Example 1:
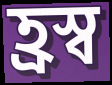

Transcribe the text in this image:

হ্রস্ব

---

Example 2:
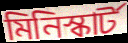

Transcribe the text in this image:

মিনিস্কার্ট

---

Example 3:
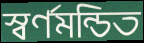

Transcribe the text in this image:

স্বর্ণমন্ডিত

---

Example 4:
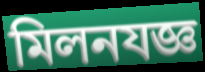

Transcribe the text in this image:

মিলনযজ্ঞ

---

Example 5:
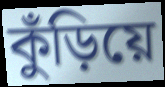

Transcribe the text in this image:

কুঁড়িয়ে